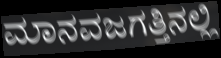
ಮಾನವಜಗತ್ತಿನಲ್ಲಿ